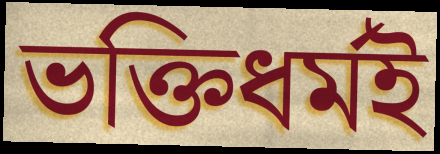
ভক্তিধৰ্মই